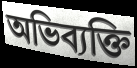
অভিব্যক্তি